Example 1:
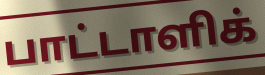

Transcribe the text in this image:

பாட்டாளிக்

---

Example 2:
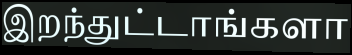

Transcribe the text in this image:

இறந்துட்டாங்களா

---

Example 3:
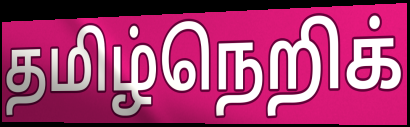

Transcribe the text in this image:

தமிழ்நெறிக்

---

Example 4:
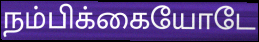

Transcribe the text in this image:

நம்பிக்கையோடே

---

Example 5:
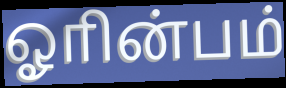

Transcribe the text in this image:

ஓரின்பம்